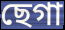
ছেগা